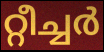
റ്റീച്ചർ